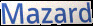
Mazard